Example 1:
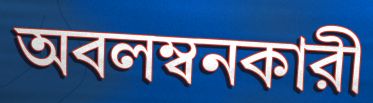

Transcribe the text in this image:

অবলম্বনকারী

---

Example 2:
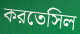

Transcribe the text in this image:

করতেসিল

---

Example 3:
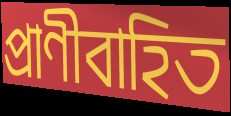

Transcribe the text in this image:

প্রাণীবাহিত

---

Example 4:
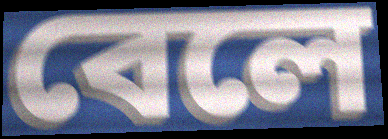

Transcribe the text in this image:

বেলে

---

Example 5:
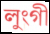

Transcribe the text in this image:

লুংগী